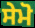
ਸੇਮੋ